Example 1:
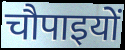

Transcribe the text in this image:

चौपाइयों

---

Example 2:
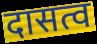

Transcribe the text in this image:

दासत्व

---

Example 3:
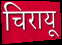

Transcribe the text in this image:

चिरायू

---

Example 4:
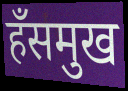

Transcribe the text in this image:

हँसमुख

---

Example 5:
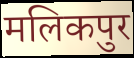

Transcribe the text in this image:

मलिकपुर